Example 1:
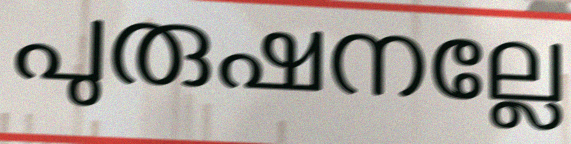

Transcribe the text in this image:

പുരുഷനല്ലേ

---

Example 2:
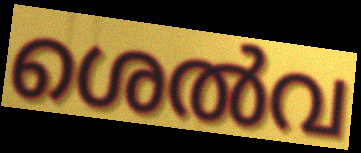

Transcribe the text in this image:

ശെൽവ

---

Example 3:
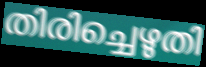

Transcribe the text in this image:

തിരിച്ചെഴുതി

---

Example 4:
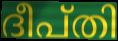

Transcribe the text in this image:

ദീപ്തി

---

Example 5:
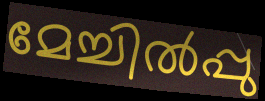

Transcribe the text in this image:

മേച്ചിൽപ്പു